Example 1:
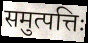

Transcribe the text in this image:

समुत्पत्तिः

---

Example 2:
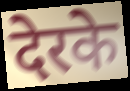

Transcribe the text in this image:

देरके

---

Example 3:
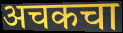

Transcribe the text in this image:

अचकचा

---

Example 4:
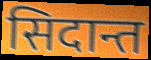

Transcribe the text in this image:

सिदान्त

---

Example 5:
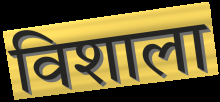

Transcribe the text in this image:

विशाला